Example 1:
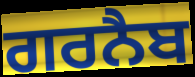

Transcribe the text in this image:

ਗਰਨੈਬ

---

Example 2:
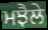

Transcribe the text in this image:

ਮਝੈਲੇ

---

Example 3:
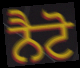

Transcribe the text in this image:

ਨੈਟੋ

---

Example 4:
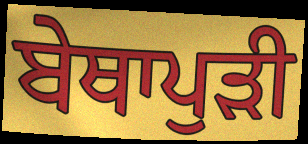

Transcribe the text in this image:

ਬੇਥਾਪੁੜੀ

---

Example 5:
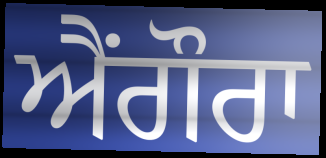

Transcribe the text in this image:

ਐਂਗੌਰਾ